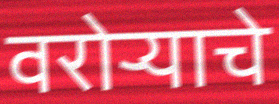
वरोऱ्याचे